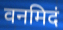
वनमिदं